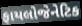
ફાયલોજેનેટિક